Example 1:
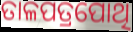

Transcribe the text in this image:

ତାଳପତ୍ରପୋଥି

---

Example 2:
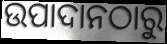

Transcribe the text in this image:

ଉପାଦାନଠାରୁ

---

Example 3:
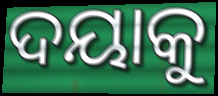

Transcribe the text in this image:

ଦୟାକୁ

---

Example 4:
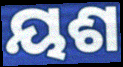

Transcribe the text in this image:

ୟଶ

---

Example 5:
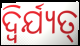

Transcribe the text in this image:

ଦ୍ୱିର୍ଯ୍ୟତ୍